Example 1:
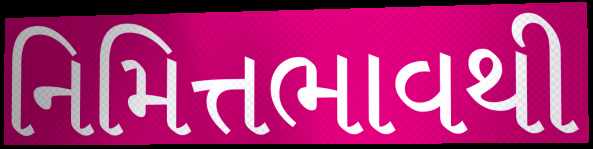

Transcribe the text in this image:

નિમિત્તભાવથી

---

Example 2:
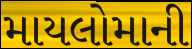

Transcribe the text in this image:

માયલોમાની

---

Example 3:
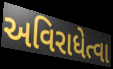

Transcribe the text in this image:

અવિરાધેત્વા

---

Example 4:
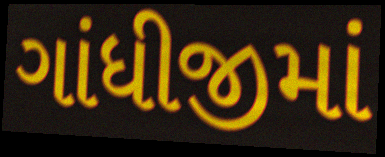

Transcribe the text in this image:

ગાંધીજીમાં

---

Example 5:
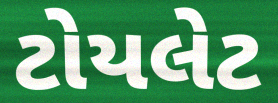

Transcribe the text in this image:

ટોયલેટ